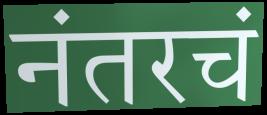
नंतरचं